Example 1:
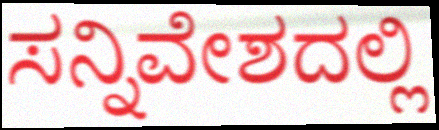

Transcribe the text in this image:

ಸನ್ನಿವೇಶದಲ್ಲಿ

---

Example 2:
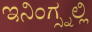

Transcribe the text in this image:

ಇನಿಂಗ್ಸ್ನಲ್ಲಿ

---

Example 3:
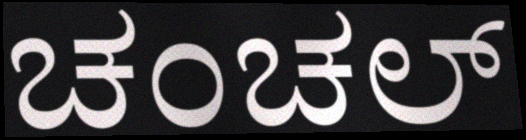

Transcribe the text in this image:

ಚಂಚಲ್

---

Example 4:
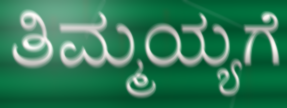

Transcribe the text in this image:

ತಿಮ್ಮಯ್ಯಗೆ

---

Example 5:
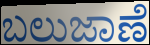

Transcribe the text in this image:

ಬಲುಜಾಣೆ